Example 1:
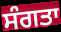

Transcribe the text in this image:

ਸੰਗਤਾ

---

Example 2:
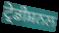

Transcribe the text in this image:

ਟ੍ਰੇਡੀਸ਼ਨਲ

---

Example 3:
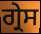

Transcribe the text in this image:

ਗ੍ਰੇਸ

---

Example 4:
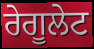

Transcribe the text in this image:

ਰੇਗੂਲੇਟ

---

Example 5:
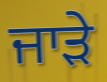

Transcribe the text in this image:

ਜਾੜੇ